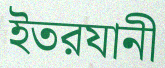
ইতরযানী